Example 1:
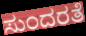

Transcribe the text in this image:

ಸುಂದರತೆ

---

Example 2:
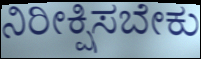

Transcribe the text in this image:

ನಿರೀಕ್ಷಿಸಬೇಕು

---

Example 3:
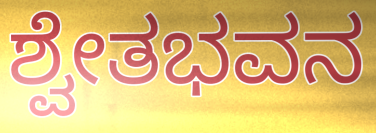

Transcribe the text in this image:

ಶ್ವೇತಭವನ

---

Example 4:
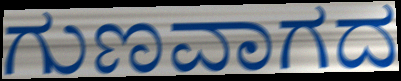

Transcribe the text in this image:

ಗುಣವಾಗದ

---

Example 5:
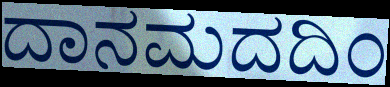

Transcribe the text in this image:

ದಾನಮದದಿಂ